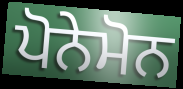
ਪੋਨੇਮੋਨ